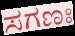
ಸಗಣಃ